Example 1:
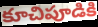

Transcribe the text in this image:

కూచిపూడికి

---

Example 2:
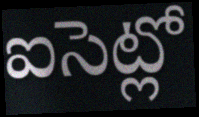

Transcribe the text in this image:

ఐసెట్లో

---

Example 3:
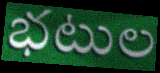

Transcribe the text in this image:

భటుల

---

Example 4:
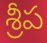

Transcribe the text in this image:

శ్రీప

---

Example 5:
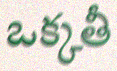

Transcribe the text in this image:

ఒక్కతీ